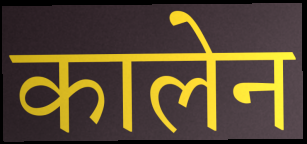
कालेन